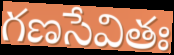
గణసేవితః